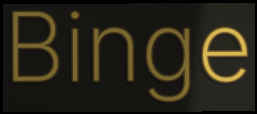
Binge